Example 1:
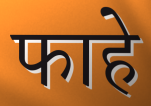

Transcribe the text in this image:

फाहे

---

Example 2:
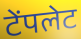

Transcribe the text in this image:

टेंपलेट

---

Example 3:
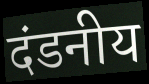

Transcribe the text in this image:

दंडनीय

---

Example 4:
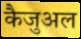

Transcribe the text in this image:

कैजुअल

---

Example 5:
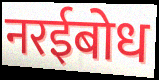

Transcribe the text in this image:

नरईबोध